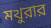
মথুরার